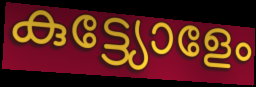
കുട്ട്യോളേം